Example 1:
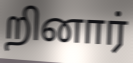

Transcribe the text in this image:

றினார்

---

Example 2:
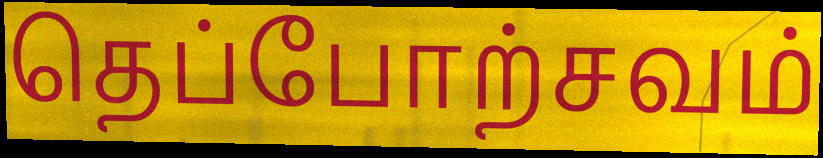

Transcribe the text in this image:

தெப்போற்சவம்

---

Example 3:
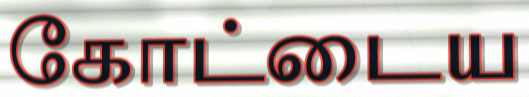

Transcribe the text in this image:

கோட்டைய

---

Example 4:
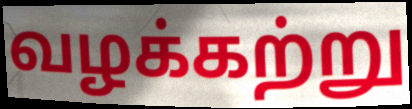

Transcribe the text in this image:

வழக்கற்று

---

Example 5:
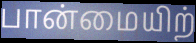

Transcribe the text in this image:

பான்மையிற்